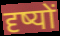
दृष्यों